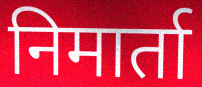
निमार्ता